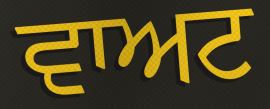
ਵਾਅਟ